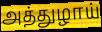
அத்துழாய்